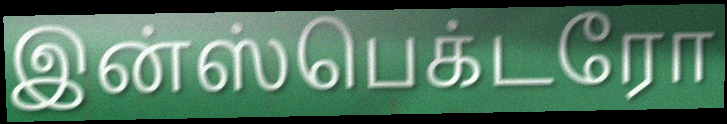
இன்ஸ்பெக்டரோ